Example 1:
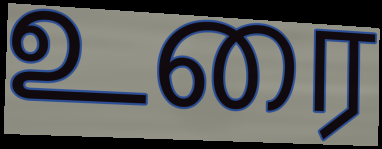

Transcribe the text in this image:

உரை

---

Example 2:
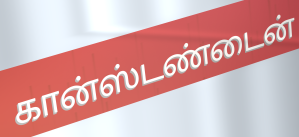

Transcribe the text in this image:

கான்ஸ்டண்டைன்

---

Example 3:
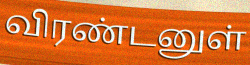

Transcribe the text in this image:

விரண்டனுள்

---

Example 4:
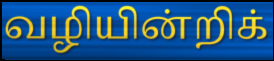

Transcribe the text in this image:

வழியின்றிக்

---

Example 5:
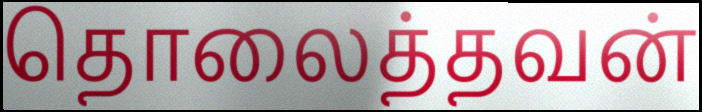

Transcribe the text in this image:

தொலைத்தவன்